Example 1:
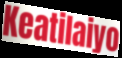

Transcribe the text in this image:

Keatilaiyo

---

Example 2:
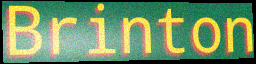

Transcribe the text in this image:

Brinton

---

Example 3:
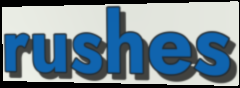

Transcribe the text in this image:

rushes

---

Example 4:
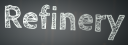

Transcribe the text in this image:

Refinery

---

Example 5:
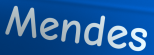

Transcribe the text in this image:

Mendes